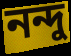
নন্দু